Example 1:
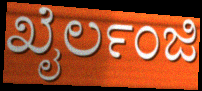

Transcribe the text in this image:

ಖೈರ್ಲಂಜಿ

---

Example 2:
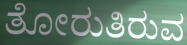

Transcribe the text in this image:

ತೋರುತಿರುವ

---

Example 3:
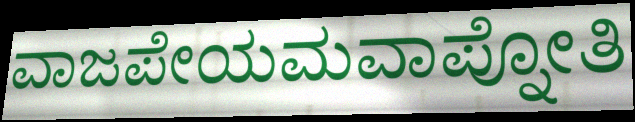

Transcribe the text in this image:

ವಾಜಪೇಯಮವಾಪ್ನೋತಿ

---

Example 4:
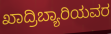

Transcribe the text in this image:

ಖಾದ್ರಿಬ್ಯಾರಿಯವರ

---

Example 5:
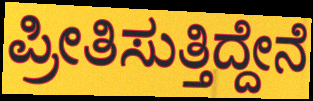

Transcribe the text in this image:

ಪ್ರೀತಿಸುತ್ತಿದ್ದೇನೆ